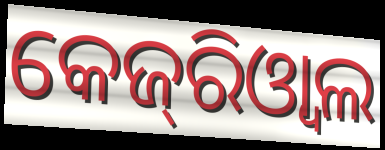
କେଜ୍‌ରିଓ୍ବାଲ